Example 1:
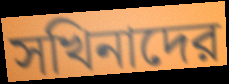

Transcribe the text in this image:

সখিনাদের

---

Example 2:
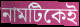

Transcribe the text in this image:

নামটিকেই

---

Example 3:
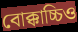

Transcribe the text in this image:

বোক্কাচ্চিও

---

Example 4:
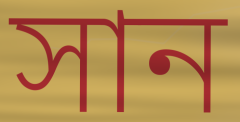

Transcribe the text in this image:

সান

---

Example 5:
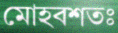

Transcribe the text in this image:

মোহবশতঃ